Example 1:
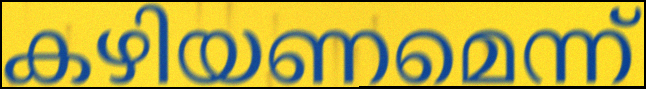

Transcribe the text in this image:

കഴിയണമെന്ന്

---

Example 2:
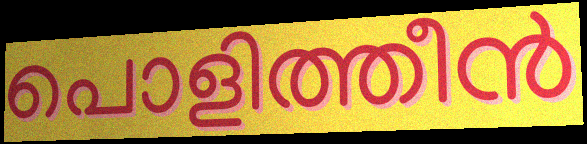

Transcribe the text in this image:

പൊളിത്തീൻ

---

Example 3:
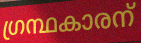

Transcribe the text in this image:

ഗ്രന്ഥകാരന്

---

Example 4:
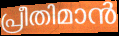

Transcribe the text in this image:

പ്രീതിമാൻ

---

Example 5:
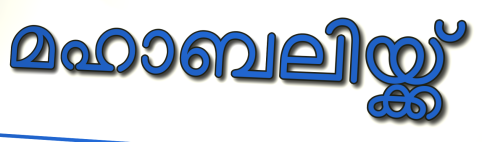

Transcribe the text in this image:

മഹാബലിയ്ക്ക്